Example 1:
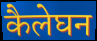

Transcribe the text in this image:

कैलेघन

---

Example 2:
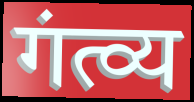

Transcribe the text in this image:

गंत्व्य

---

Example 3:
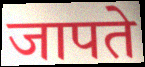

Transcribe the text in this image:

जापते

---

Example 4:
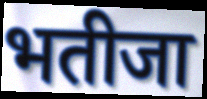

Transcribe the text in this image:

भतीजा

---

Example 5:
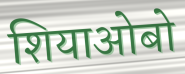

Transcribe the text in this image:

शियाओबो